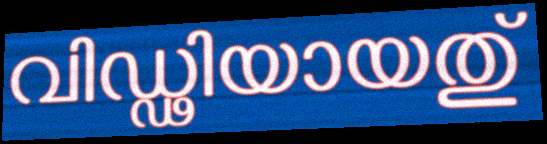
വിഡ്ഢിയായതു്